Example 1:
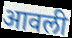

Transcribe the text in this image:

आवली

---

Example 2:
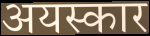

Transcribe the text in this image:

अयस्कार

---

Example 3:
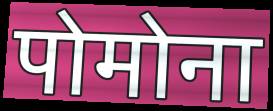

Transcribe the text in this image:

पोमोना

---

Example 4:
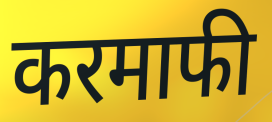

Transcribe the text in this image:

करमाफी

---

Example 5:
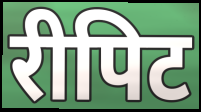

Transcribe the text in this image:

रीपिट